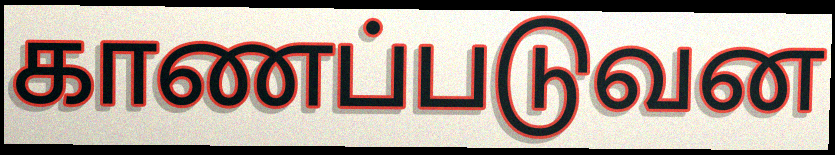
காணப்படுவன